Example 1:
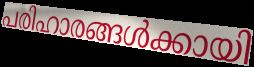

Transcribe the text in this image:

പരിഹാരങ്ങൾക്കായി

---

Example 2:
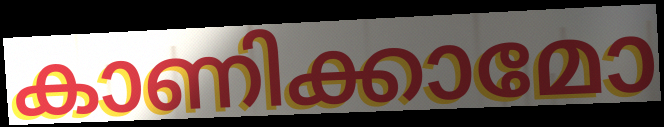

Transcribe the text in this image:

കാണിക്കാമോ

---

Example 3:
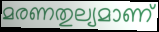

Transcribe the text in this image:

മരണതുല്യമാണ്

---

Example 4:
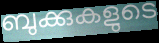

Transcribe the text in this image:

ബുക്കുകളുടെ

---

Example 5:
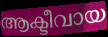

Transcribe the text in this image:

ആക്ടീവായ